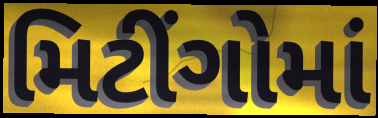
મિટીંગોમાં